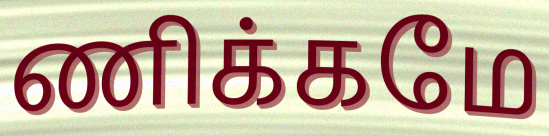
ணிக்கமே